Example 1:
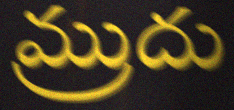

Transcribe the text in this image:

మ్రుదు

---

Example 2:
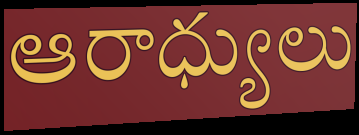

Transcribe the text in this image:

ఆరాధ్యులు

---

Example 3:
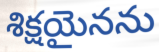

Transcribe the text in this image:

శిక్షయైనను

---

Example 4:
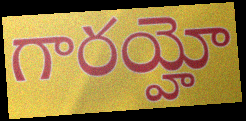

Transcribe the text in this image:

గారయ్హో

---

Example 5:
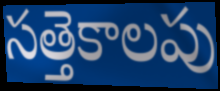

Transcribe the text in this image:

సత్తెకాలపు